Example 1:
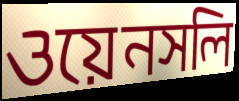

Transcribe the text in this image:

ওয়েনসলি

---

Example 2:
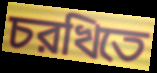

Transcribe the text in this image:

চরখিতে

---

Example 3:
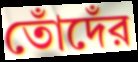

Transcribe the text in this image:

তোঁদেঁর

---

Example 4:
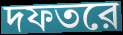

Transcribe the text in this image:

দফতরে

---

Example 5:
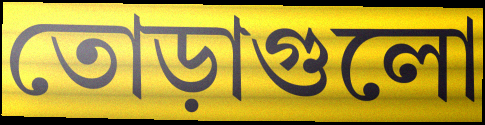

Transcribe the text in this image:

তোড়াগুলো